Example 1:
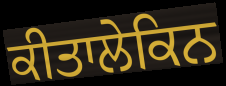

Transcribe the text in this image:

ਕੀਤਾਲੇਕਿਨ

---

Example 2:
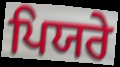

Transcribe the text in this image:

ਪਿਯਰੇ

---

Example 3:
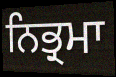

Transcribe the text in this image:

ਨਿਭ੍ਰਮਾ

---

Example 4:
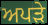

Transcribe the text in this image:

ਅਪੜੇ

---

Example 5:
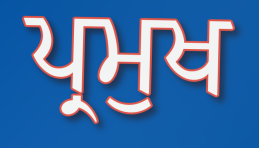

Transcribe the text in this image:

ਪ੍ਰਮੁਖ